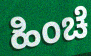
ಹಿಂಚೆ